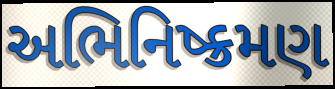
અભિનિષ્ક્રમણ